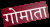
गोमाता